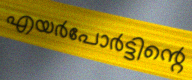
എയർപോർട്ടിന്റെ